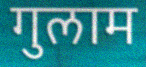
गुलाम